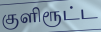
குளிரூட்ட